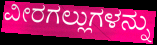
ವೀರಗಲ್ಲುಗಳನ್ನು